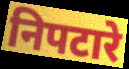
निपटारे